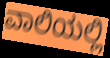
ವಾಲಿಯಲ್ಲಿ